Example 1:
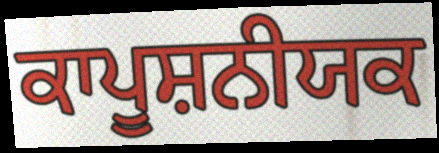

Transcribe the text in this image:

ਕਾਪੂਸ਼ਨੀਯਕ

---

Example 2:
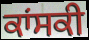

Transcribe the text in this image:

ਕਾਂਸਕੀ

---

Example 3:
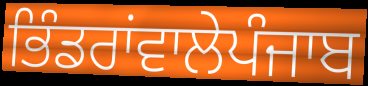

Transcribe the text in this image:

ਭਿੰਡਰਾਂਵਾਲੇਪੰਜਾਬ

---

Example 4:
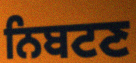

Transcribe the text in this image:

ਨਿਬਟਣ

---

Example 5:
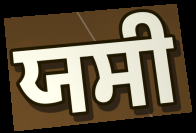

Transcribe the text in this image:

ਯਸੀ